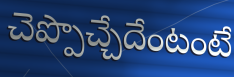
చెప్పొచ్చేదేంటంటే